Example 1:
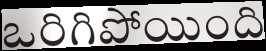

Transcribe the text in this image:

ఒరిగిపోయింది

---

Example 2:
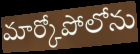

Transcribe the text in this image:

మార్కోపోలోను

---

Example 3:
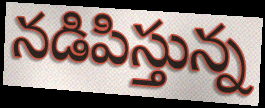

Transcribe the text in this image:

నడిపిస్తున్న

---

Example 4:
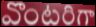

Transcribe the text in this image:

వొంటరిగా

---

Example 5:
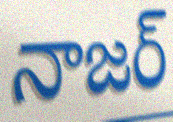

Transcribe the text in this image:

నాజర్